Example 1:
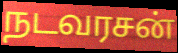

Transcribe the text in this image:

நடவரசன்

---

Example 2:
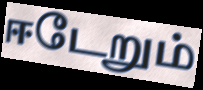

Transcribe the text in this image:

ஈடேறும்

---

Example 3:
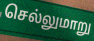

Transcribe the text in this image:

செல்லுமாறு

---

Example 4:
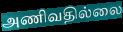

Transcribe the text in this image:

அணிவதில்லை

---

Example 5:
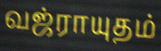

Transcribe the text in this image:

வஜ்ராயுதம்